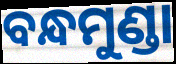
ବନ୍ଧମୁଣ୍ଡା